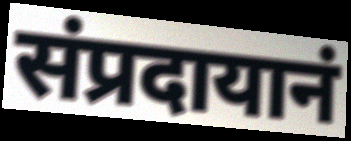
संप्रदायानं